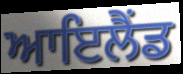
ਆਇਲੈੰਡ